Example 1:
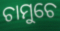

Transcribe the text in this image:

ଚାମୁଚେ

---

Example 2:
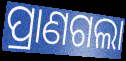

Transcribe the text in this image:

ପ୍ରାଣଗଲା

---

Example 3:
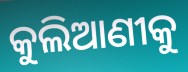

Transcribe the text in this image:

କୁଲିଆଣୀକୁ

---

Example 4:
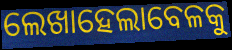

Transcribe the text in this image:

ଲେଖାହେଲାବେଳକୁ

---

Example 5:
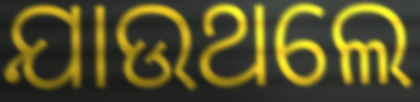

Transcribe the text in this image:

ଯାଉଥଲେ